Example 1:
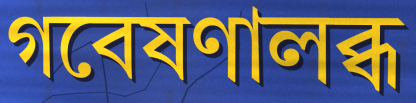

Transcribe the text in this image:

গবেষণালব্ধ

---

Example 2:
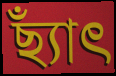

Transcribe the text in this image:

ছ্যাঁৎ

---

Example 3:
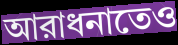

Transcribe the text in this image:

আরাধনাতেও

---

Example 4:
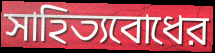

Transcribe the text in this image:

সাহিত্যবোধের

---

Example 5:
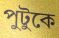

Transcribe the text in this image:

পুটুকে